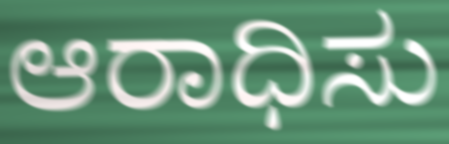
ಆರಾಧಿಸು